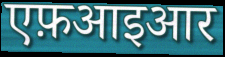
एफ़आइआर